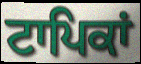
ਟਾਪਿਕਾਂ